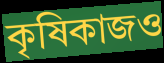
কৃষিকাজও